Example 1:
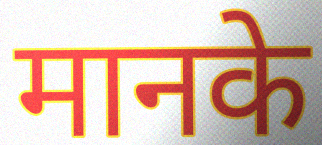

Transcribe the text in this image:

मानके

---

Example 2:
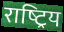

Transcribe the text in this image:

राष्ट्रिय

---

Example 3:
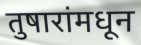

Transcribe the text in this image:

तुषारांमधून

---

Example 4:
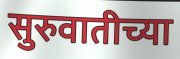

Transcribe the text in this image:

सुरुवातीच्या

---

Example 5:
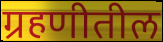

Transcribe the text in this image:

ग्रहणीतील